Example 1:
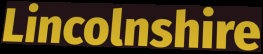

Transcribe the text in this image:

Lincolnshire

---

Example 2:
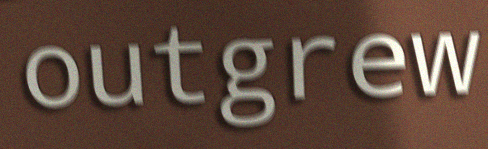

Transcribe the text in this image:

outgrew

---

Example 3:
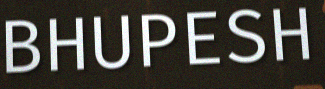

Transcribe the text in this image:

BHUPESH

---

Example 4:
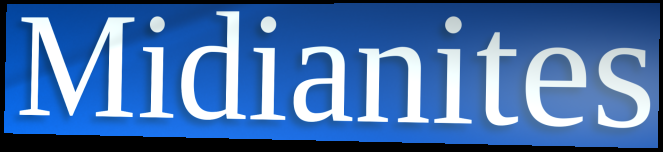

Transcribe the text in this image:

Midianites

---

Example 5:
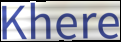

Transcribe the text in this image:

Khere